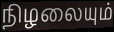
நிழலையும்